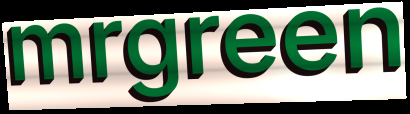
mrgreen